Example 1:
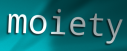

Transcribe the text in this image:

moiety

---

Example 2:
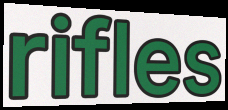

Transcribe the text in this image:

rifles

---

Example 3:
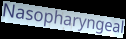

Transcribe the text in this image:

Nasopharyngeal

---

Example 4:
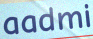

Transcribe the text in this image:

aadmi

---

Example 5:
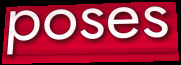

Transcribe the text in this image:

poses